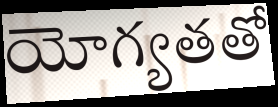
యోగ్యతతో